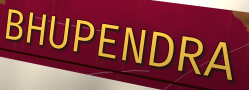
BHUPENDRA